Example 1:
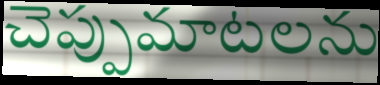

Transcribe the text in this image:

చెప్పుమాటలను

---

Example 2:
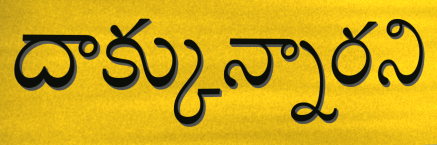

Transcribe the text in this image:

దాక్కున్నారని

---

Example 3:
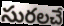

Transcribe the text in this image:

సురలచే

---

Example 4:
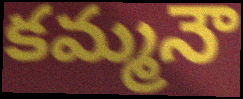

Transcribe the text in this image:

కమ్మనౌ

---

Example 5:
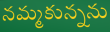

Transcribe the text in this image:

నమ్మకున్నను